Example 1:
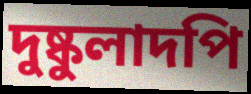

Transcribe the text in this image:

দুষ্কুলাদপি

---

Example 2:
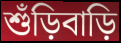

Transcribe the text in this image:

শুঁড়িবাড়ি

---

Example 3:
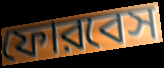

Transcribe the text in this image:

ফোরবেস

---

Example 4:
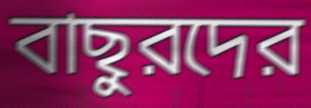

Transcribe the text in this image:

বাছুরদের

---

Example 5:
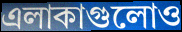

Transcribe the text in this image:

এলাকাগুলোও